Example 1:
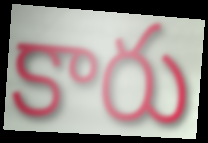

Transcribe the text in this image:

కారు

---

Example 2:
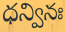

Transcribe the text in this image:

ధన్వినః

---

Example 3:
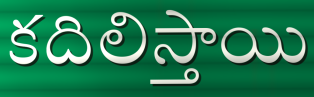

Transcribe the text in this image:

కదిలిస్తాయి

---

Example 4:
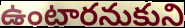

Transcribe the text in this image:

ఉంటారనుకుని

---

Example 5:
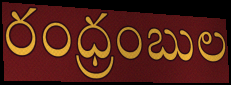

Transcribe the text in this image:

రంధ్రంబుల